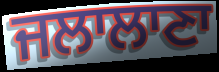
ਜਲਾਲਾਣਾ